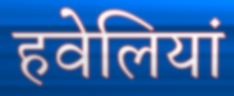
हवेलियां